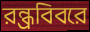
রন্ধ্রবিবরে